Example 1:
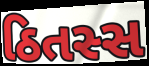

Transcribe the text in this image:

ઠિતસ્સ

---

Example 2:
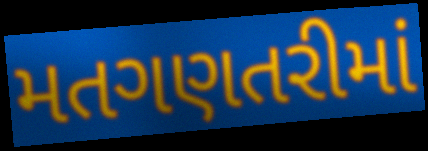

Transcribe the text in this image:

મતગણતરીમાં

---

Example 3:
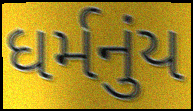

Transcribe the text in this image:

ધર્મનુંય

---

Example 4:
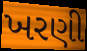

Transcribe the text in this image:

ખરણી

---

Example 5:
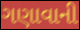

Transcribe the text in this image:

ગણાવાની